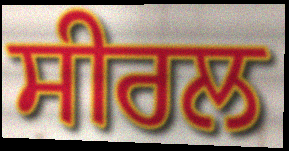
ਸੀਰਲ